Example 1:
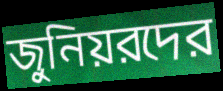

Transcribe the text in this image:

জুনিয়রদের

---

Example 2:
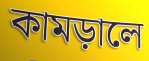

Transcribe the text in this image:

কামড়ালে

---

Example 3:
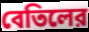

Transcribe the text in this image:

বেতিলের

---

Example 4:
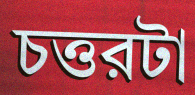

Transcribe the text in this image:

চত্তরটা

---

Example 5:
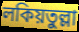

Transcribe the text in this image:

লকিয়তুল্লা